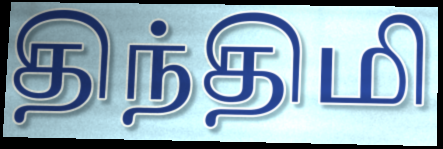
திந்திமி